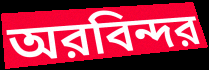
অরবিন্দর